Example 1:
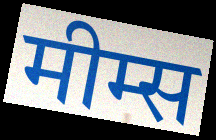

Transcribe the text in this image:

मीम्स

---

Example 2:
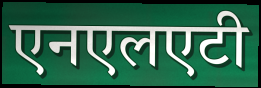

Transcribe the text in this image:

एनएलएटी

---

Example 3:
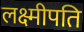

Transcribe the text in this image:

लक्ष्मीपति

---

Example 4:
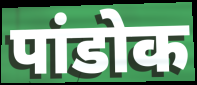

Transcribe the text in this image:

पांडोक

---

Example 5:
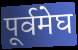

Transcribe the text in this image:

पूर्वमेघ